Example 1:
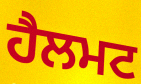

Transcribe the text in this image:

ਹੈਲਮਟ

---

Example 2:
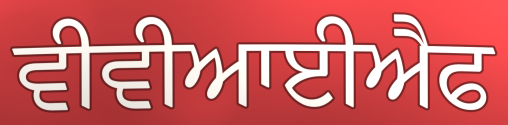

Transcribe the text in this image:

ਵੀਵੀਆਈਐਫ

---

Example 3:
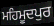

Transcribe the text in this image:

ਮਹਿਮੂਦਪੁਰ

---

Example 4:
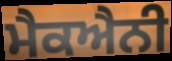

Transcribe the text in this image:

ਮੈਕਐਨੀ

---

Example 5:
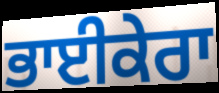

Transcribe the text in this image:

ਭਾਈਕੇਰਾ